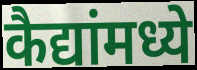
कैद्यांमध्ये